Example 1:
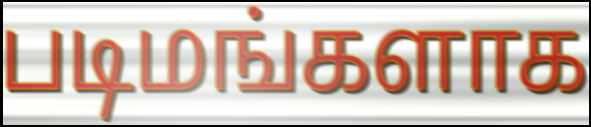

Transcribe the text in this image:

படிமங்களாக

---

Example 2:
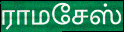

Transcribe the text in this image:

ராமசேஸ்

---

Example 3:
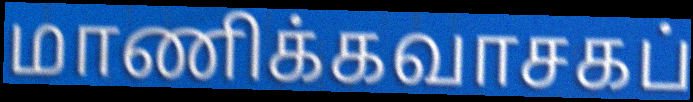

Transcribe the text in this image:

மாணிக்கவாசகப்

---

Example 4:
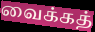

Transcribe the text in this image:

வைக்கத்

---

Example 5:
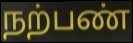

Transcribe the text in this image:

நற்பண்